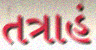
તત્રાહં